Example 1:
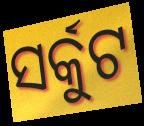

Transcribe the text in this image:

ସର୍କୁଟ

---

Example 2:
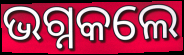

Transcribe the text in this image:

ଭଗ୍ନକଲେ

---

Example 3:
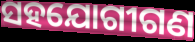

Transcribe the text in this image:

ସହଯୋଗୀଗଣ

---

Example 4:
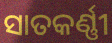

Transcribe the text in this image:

ସାତକର୍ଣ୍ଣୀ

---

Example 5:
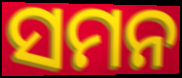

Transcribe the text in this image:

ସମନ